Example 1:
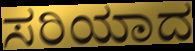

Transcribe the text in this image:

ಸರಿಯಾದ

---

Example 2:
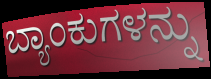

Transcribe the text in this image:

ಬ್ಯಾಂಕುಗಳನ್ನು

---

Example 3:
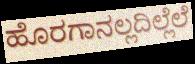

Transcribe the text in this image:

ಹೊರಗಾನಲ್ಲದಿಲ್ಲೆಲೆ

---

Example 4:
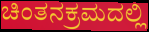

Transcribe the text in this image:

ಚಿಂತನಕ್ರಮದಲ್ಲಿ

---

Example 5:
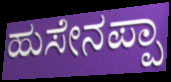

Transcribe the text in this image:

ಹುಸೇನಪ್ಪಾ